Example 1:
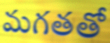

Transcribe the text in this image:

మగతతో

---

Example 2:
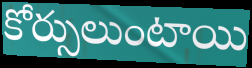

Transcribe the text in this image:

కోర్సులుంటాయి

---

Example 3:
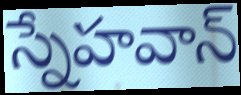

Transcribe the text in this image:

స్నేహవాన్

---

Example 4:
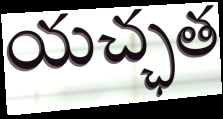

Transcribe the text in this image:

యచ్ఛత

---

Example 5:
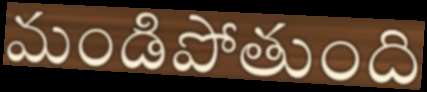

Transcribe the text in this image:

మండిపోతుంది